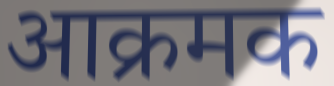
आक्रमक